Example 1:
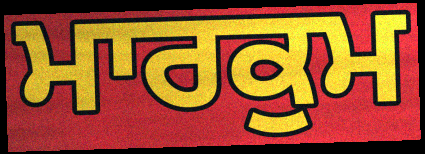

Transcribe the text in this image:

ਮਾਰਕੁਮ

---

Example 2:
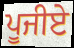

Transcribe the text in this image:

ਪੂਜੀਏ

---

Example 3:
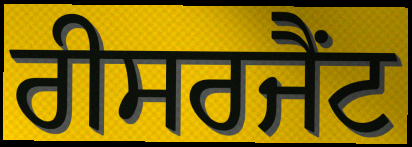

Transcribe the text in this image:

ਰੀਸਰਜੈਂਟ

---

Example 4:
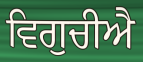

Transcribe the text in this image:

ਵਿਗੁਚੀਐ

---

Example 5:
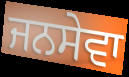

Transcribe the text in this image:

ਜਨਸੇਵਾ